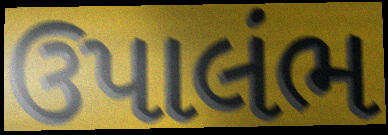
ઉપાલંભ